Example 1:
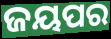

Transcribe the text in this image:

ଜୟପର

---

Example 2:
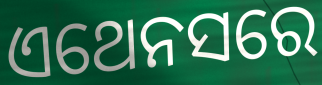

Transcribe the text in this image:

ଏଥେନସରେ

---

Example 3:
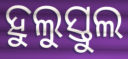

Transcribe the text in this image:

ହୁଲୁସ୍ତୁଲ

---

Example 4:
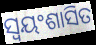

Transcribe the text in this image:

ସ୍ବୟଂଶାସିତ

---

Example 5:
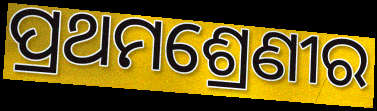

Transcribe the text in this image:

ପ୍ରଥମଶ୍ରେଣୀର